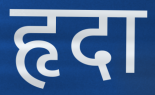
हृदा